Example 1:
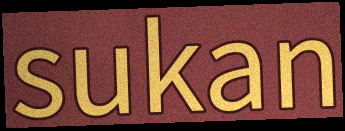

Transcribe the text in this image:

sukan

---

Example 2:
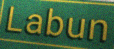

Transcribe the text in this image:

Labun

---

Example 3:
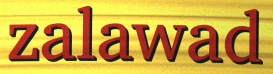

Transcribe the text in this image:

zalawad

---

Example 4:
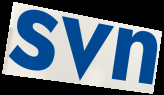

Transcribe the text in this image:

svn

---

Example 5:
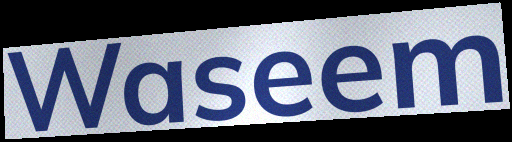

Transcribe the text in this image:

Waseem